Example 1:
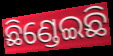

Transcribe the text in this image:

ଛିଣ୍ଡେଇଛି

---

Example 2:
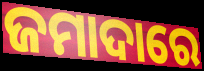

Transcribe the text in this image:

ଜମାଦାରେ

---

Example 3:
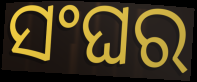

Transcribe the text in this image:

ସଂଘର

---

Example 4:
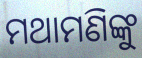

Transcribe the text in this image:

ମଥାମଣିଙ୍କୁ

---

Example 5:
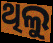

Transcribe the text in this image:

ଥିଲୁ